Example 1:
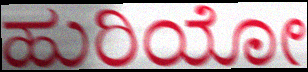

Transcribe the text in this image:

ಹುರಿಯೋ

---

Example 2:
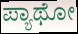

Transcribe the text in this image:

ಪ್ಯಾಥೋ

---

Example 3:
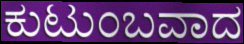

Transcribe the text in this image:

ಕುಟುಂಬವಾದ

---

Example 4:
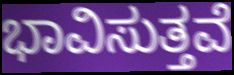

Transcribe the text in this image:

ಭಾವಿಸುತ್ತವೆ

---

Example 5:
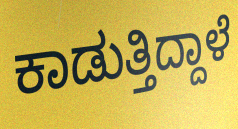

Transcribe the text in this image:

ಕಾಡುತ್ತಿದ್ದಾಳೆ